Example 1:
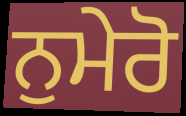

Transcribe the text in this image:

ਨੁਮੇਰੋ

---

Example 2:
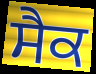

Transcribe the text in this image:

ਸੈਕ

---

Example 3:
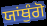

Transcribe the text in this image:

ਯਾਂਥੁੰਗੋ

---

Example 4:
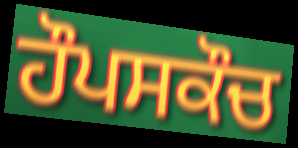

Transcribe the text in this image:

ਹੌਪਸਕੌਚ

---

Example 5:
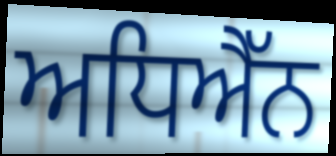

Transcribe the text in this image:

ਅਧਿਐੱਨ